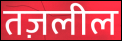
तज़लील